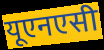
यूएनएसी